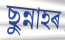
ছুন্নাহৰ